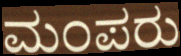
ಮಂಪರು